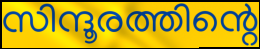
സിന്ദൂരത്തിന്റെ